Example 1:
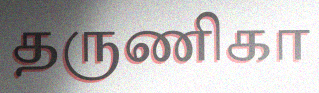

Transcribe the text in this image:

தருணிகா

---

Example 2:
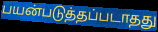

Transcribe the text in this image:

பயன்படுத்தப்படாதது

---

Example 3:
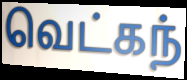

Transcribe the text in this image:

வெட்கந்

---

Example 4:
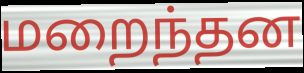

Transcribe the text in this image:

மறைந்தன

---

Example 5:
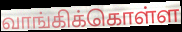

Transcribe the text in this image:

வாங்கிக்கொள்ள